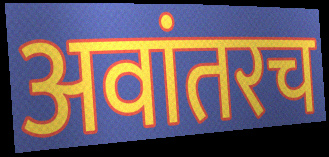
अवांतरच